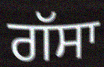
ਗੱਸਾ